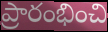
ప్రారంభించి